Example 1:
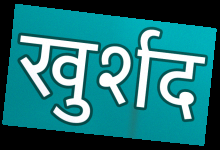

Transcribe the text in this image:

खुर्शद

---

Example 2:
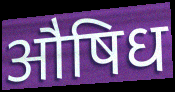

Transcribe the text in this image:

औषिध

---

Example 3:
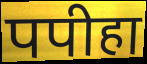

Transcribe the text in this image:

पपीहा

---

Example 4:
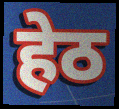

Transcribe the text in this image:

हेठ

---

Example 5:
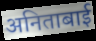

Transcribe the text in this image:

अनिताबाई